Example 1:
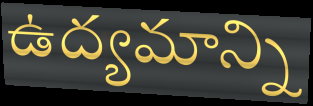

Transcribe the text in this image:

ఉద్యమాన్ని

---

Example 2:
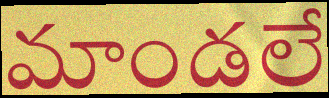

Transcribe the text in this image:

మాండలే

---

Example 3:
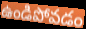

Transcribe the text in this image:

ఉండిపోవడం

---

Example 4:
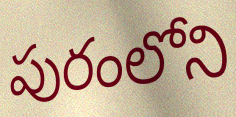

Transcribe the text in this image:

పురంలోని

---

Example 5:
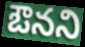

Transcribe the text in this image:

ఔనని